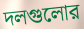
দলগুলোর